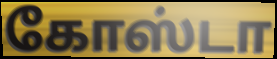
கோஸ்டா